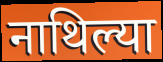
नाथिल्या